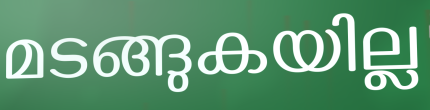
മടങ്ങുകയില്ല